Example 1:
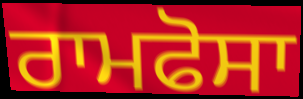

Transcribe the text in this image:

ਰਾਮਫੋਸਾ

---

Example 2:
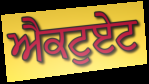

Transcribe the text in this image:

ਐਕਟੁਏਟ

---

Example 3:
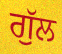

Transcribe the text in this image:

ਗੁੱਲ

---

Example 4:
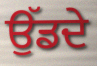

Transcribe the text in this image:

ਉੱਡਦੇ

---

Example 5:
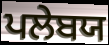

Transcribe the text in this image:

ਪਲੇਬਯ